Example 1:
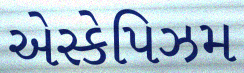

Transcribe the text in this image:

એસ્કેપિઝમ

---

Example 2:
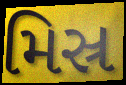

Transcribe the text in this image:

મિસ્ર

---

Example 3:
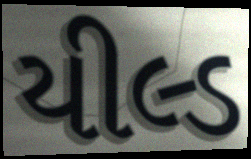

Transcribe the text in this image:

યીલ્ડ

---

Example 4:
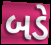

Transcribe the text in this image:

બડે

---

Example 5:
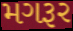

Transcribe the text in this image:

મગરૂર